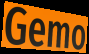
Gemo